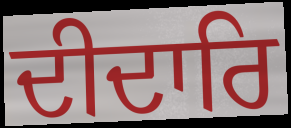
ਦੀਦਾਰਿ